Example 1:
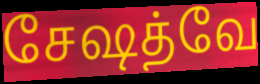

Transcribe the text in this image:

சேஷத்வே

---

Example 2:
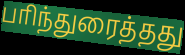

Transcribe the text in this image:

பரிந்துரைத்தது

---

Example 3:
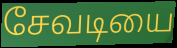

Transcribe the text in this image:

சேவடியை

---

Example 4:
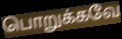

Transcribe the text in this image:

பொறுக்கவே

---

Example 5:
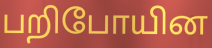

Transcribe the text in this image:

பறிபோயின